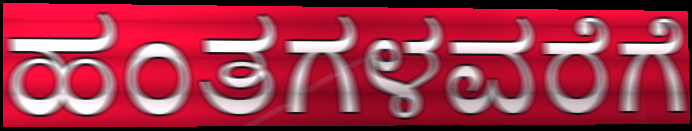
ಹಂತಗಳವರೆಗೆ